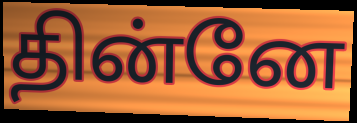
தின்னே